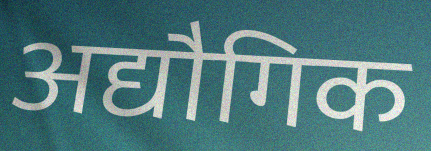
अद्यौगिक